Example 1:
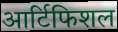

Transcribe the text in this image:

आर्टिफिशल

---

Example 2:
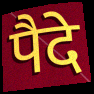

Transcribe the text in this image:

पैदे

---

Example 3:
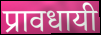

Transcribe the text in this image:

प्रावधायी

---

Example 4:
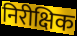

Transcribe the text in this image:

निरीक्षिक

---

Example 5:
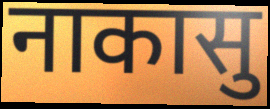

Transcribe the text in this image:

नाकासु